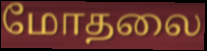
மோதலை